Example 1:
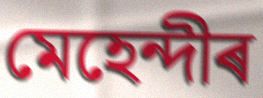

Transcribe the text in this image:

মেহেন্দীৰ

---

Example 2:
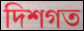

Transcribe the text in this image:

দিশগত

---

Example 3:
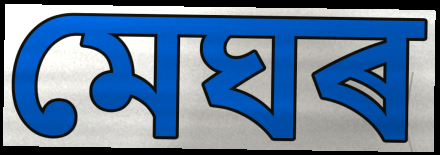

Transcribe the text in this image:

মেঘৰ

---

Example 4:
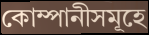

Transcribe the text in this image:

কোম্পানীসমূহে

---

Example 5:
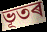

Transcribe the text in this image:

ভূতৰ